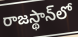
రాజస్థాన్‌లో